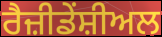
ਰੈਜ਼ੀਡੇਂਸ਼ੀਅਲ